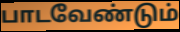
பாடவேண்டும்